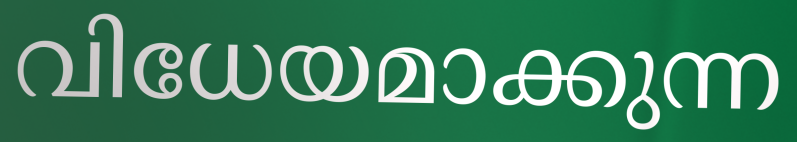
വിധേയമാക്കുന്ന